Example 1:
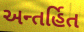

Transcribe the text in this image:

અન્તર્હિત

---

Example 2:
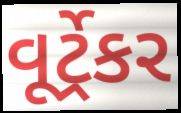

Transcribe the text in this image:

વૂર્ટ્રેકર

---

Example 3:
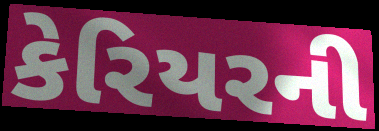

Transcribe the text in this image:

કેરિયરની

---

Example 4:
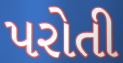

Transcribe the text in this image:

પરોતી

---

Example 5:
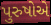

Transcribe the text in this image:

પુરુષોએ